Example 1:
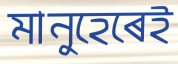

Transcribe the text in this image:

মানুহেৰেই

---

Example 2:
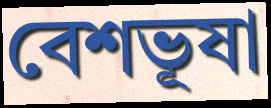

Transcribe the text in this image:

বেশভূষা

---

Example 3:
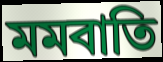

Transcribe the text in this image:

মমবাতি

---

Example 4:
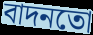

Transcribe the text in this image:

বাদনতো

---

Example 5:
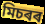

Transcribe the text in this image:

মিচৰৰ